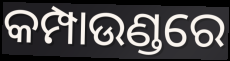
କମ୍ପାଉଣ୍ଡରେ